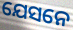
ଯେସନେ